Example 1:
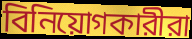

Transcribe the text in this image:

বিনিয়োগকারীরা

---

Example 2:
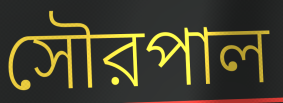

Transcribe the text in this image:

সৌরপাল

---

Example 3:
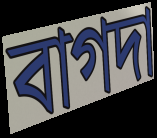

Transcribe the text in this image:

বাগদা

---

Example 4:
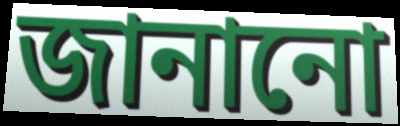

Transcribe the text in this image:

জানানো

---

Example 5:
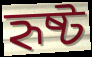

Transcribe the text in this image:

হৃষ্ট